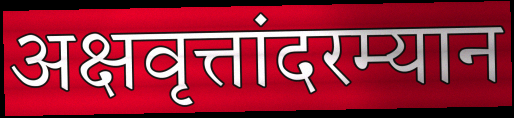
अक्षवृत्तांदरम्यान